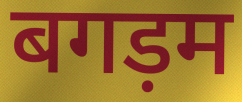
बगड़म